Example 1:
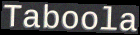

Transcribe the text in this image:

Taboola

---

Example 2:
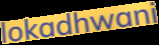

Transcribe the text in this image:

lokadhwani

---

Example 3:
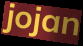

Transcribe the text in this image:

jojan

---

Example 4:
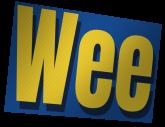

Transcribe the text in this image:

Wee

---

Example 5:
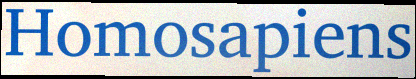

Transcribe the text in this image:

Homosapiens